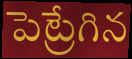
పెట్రేగిన